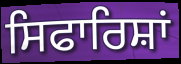
ਸਿਫਾਰਿਸ਼ਾਂ